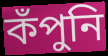
কঁপুনি